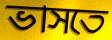
ভাসতে